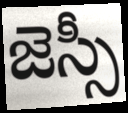
జెస్సీ